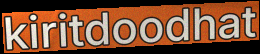
kiritdoodhat